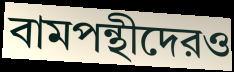
বামপন্থীদেরও